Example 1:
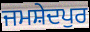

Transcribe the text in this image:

ਜਮਸ਼ੇਦਪੁਰ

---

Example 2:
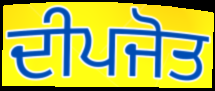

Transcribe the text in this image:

ਦੀਪਜੋਤ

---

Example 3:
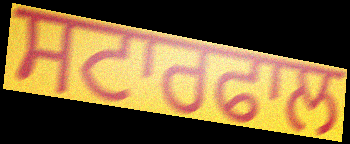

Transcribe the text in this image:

ਸਟਾਰਫਾਲ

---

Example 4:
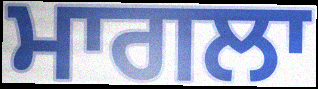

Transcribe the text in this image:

ਮਾਗਲਾ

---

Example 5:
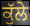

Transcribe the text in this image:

ਕੁੱਲੇ